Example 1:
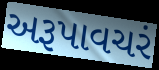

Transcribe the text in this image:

અરૂપાવચરં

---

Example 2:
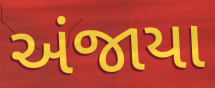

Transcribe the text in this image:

અંજાયા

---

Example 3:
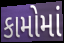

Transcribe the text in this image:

કામોમાં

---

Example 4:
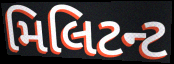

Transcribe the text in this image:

મિલિટન્ટ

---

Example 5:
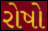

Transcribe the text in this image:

રોષો